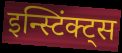
इन्स्टिंक्ट्स